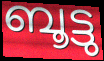
ബൂട്ടു